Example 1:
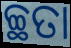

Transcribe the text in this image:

ଚ୍ଛତା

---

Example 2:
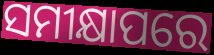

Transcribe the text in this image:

ସମୀକ୍ଷାପରେ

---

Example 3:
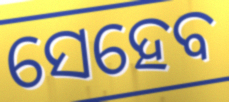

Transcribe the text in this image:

ସେହେବ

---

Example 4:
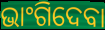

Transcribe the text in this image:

ଭାଂଗିଦେବା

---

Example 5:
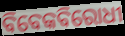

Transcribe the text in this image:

ବିବେକବିରୋଧୀ